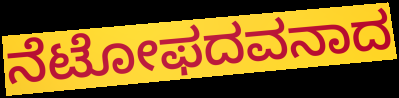
ನೆಟೋಫದವನಾದ